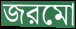
জরমো